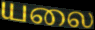
யலை